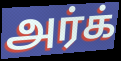
அர்க்